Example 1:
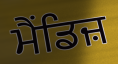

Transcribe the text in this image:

ਮੈਂਡਿਜ਼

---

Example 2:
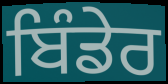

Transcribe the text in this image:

ਬਿੰਡੇਰ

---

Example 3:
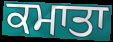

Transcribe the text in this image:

ਕਮਾਤਾ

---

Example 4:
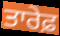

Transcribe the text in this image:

ਤਾਰੇਫ਼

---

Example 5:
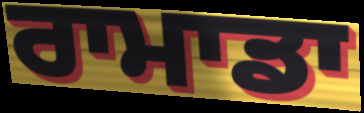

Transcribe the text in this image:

ਰਾਮਾਡਾ